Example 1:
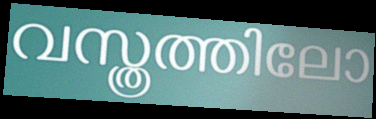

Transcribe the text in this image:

വസ്ത്രത്തിലോ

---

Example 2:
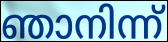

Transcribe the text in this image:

ഞാനിന്ന്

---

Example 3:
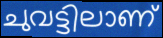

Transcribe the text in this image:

ചുവട്ടിലാണ്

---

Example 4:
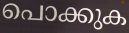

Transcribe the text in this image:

പൊക്കുക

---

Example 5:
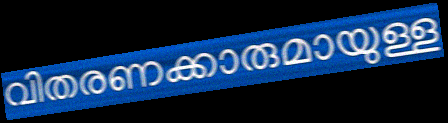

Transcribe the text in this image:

വിതരണക്കാരുമായുള്ള